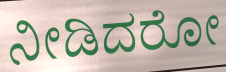
ನೀಡಿದರೋ